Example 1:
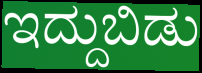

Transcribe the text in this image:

ಇದ್ದುಬಿಡು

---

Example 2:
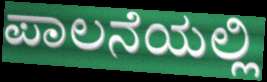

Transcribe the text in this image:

ಪಾಲನೆಯಲ್ಲಿ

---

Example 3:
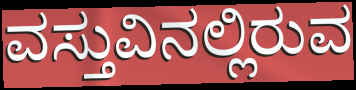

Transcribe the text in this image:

ವಸ್ತುವಿನಲ್ಲಿರುವ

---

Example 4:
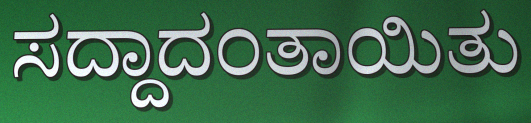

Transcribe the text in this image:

ಸದ್ದಾದಂತಾಯಿತು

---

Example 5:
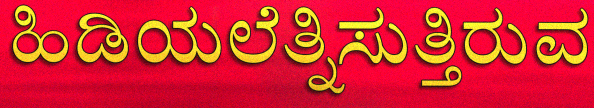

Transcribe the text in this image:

ಹಿಡಿಯಲೆತ್ನಿಸುತ್ತಿರುವ